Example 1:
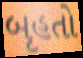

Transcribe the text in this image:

બૃહતો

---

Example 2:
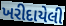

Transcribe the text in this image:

ખરીદાયેલી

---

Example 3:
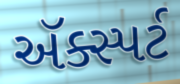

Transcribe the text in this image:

ઍક્સ્પર્ટ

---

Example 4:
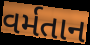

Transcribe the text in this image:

વર્મતાન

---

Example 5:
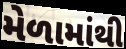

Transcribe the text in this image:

મેળામાંથી